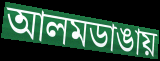
আলমডাঙায়